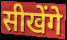
सीखेंगे